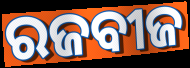
ରଜବୀଜ